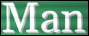
Man